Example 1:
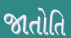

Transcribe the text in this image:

જાતોતિ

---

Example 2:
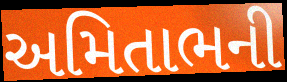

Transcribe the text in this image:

અમિતાભની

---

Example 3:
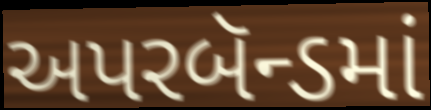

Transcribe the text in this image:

અપરબૅન્ડમાં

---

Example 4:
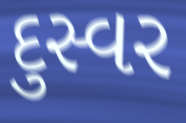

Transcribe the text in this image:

દુસ્વર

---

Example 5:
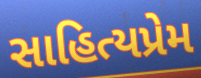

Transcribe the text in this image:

સાહિત્યપ્રેમ